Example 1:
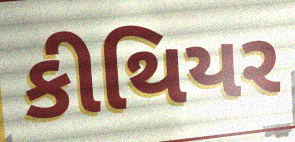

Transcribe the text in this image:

કીથિયર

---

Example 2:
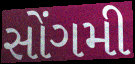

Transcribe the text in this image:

સોંગમી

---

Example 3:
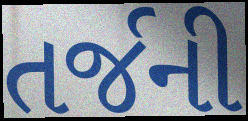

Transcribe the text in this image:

તર્જની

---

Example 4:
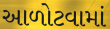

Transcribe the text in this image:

આળોટવામાં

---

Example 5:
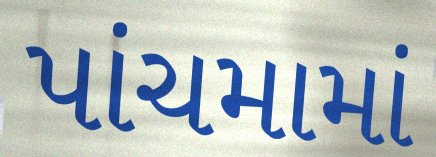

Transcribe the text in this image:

પાંચમામાં